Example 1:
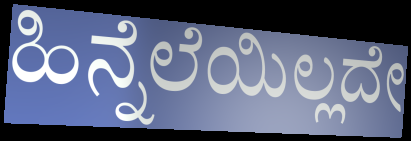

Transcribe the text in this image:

ಹಿನ್ನೆಲೆಯಿಲ್ಲದೇ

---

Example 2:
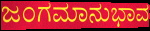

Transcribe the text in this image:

ಜಂಗಮಾನುಭಾವ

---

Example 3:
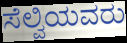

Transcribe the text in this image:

ಸೆಲ್ವಿಯವರು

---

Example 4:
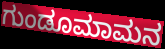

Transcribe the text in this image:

ಗುಂಡೂಮಾಮನ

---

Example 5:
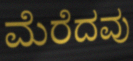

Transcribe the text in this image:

ಮೆರೆದವು